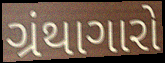
ગ્રંથાગારો